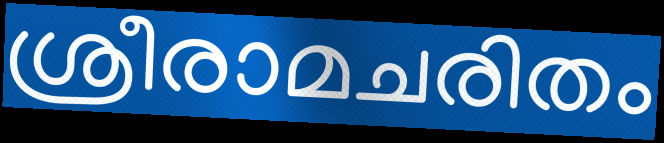
ശ്രീരാമചരിതം